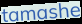
tamashe